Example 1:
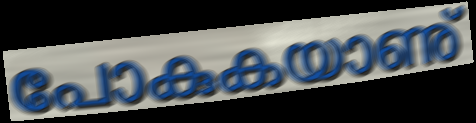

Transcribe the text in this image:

പോകുകയാണു്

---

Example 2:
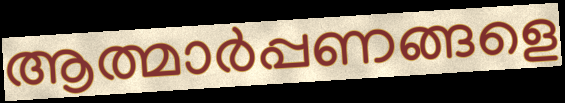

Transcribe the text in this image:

ആത്മാർപ്പണങ്ങളെ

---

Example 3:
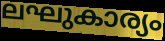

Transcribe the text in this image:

ലഘുകാര്യം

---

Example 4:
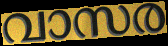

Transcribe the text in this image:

വാസര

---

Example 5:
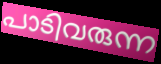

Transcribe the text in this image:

പാടിവരുന്ന